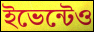
ইভেন্টেও